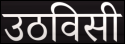
उठविसी